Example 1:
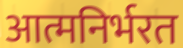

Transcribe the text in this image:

आत्मनिर्भरत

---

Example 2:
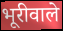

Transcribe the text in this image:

भूरीवाले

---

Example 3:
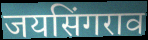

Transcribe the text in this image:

जयसिंगराव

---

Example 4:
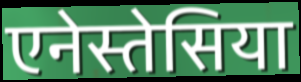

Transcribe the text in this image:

एनेस्तेसिया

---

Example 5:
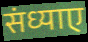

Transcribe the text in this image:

संध्याए